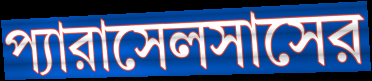
প্যারাসেলসাসের